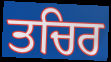
ਤਚਿਰ